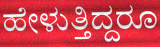
ಹೇಳುತ್ತಿದ್ದರೂ